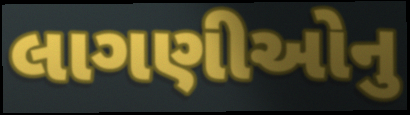
લાગણીઓનુ